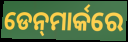
ଡେନ୍‍ମାର୍କରେ